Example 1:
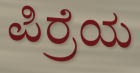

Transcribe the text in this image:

ಪಿರ್ರೆಯ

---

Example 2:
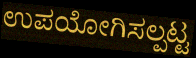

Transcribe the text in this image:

ಉಪಯೋಗಿಸಲ್ಪಟ್ಟ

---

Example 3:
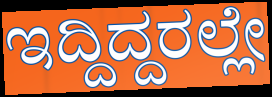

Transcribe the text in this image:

ಇದ್ದಿದ್ದರಲ್ಲೇ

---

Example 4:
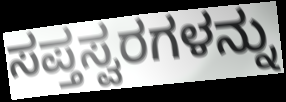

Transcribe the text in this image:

ಸಪ್ತಸ್ವರಗಳನ್ನು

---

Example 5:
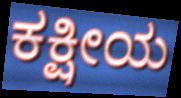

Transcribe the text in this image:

ಕಕ್ಷೀಯ